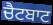
ਚੈਟਬਾਟ